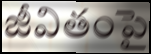
జీవితంపై